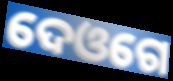
ଦେଓଗେ